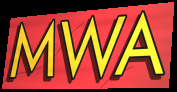
MWA